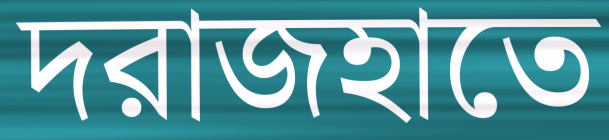
দরাজহাতে